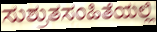
ಸುಶ್ರುತಸಂಹಿತೆಯಲ್ಲಿ